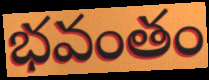
భవంతం